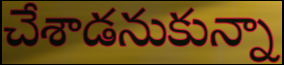
చేశాడనుకున్నా